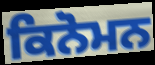
ਕਿਨੋਮਨ